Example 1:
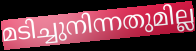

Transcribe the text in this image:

മടിച്ചുനിന്നതുമില്ല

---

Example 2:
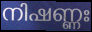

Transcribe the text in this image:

നിഷണ്ണഃ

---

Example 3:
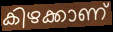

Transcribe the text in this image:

കിഴക്കാണ്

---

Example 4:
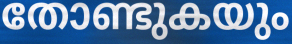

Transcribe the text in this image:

തോണ്ടുകയും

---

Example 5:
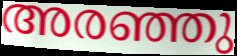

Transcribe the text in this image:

അരഞ്ഞു